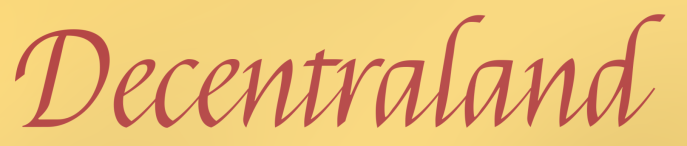
Decentraland